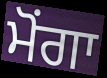
ਮੋਂਗਾ